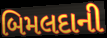
બિમલદાની